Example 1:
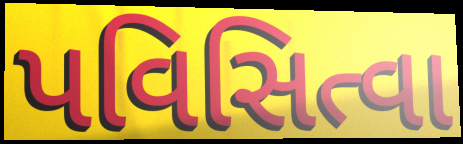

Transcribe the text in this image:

પવિસિત્વા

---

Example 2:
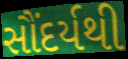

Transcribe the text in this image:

સૌંદર્યથી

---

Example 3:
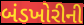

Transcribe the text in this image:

બંડખોરીની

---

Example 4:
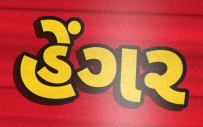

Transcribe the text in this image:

હેંગર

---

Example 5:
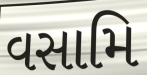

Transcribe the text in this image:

વસામિ